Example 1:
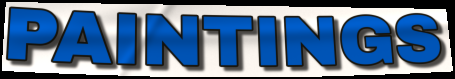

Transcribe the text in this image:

PAINTINGS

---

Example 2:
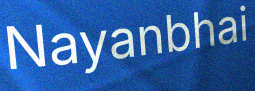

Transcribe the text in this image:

Nayanbhai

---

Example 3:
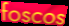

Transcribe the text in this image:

foscos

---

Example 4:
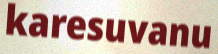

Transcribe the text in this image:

karesuvanu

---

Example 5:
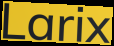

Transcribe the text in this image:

Larix